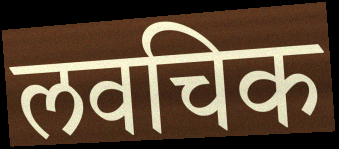
लवचिक